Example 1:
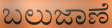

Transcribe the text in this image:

ಬಲುಜಾಣೆ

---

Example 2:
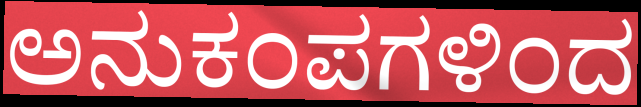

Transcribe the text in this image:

ಅನುಕಂಪಗಳಿಂದ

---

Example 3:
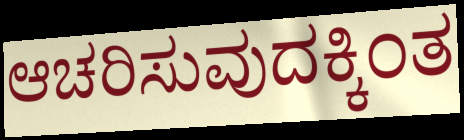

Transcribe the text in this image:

ಆಚರಿಸುವುದಕ್ಕಿಂತ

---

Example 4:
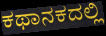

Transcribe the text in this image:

ಕಥಾನಕದಲ್ಲಿ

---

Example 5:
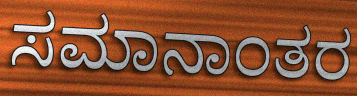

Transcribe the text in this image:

ಸಮಾನಾಂತರ